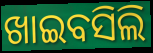
ଖାଇବସିଲି